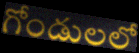
గోండులలో